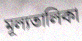
মূল্যতালিকা